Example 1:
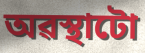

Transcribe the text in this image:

অৱস্থাটো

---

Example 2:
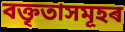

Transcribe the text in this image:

বক্তৃতাসমূহৰ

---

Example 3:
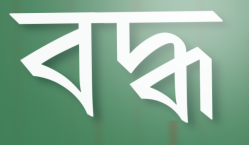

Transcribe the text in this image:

বদ্ধ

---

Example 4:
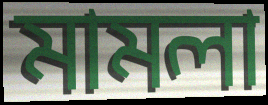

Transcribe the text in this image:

মামলা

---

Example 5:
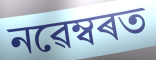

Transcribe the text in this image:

নৱেম্বৰত